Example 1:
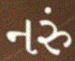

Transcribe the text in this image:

નરું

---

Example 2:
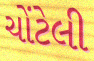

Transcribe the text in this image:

ચોંટેલી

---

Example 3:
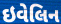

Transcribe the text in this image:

ઇવેલિન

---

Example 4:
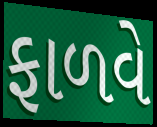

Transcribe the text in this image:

ફાળવે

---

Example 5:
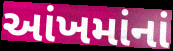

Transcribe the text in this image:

આંખમાંનાં